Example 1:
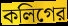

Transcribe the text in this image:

কলিগের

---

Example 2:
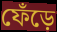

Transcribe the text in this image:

ফেঁড়ে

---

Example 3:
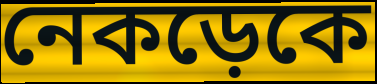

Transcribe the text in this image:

নেকড়েকে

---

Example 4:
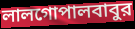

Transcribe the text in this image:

লালগোপালবাবুর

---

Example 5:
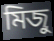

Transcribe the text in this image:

মিজু